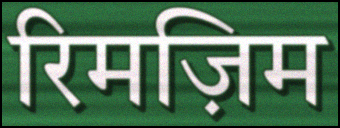
रिमज़िम